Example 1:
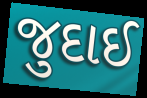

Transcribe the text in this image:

જુદાઈ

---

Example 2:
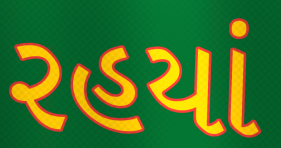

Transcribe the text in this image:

રહયાં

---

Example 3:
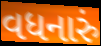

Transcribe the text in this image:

વધનારું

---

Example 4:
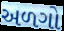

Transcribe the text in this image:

અળગો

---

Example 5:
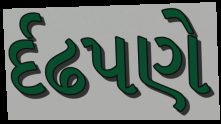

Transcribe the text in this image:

ર્દઢપણે